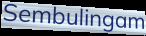
Sembulingam